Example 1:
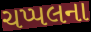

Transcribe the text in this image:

ચપ્પલના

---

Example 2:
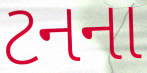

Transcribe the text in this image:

ટનના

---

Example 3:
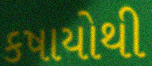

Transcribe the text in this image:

કષાયોથી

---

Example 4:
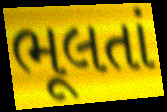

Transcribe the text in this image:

ભૂલતાં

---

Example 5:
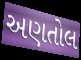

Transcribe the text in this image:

અણતોલ